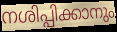
നശിപ്പിക്കാനും